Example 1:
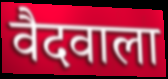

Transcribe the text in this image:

वैदवाला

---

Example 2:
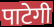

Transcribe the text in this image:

पाटेगी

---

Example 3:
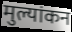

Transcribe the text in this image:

मुल्यांकन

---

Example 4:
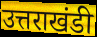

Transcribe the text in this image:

उत्तराखंडी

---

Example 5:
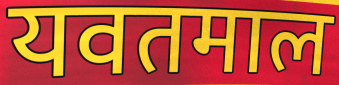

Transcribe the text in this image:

यवतमाल